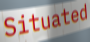
Situated